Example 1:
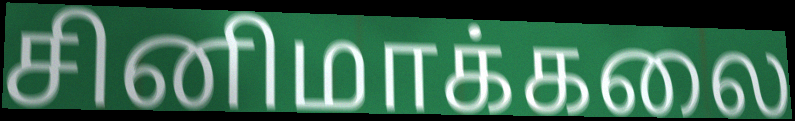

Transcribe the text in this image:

சினிமாக்கலை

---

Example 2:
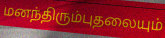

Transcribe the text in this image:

மனந்திரும்புதலையும்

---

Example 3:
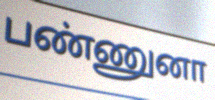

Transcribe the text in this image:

பண்ணுனா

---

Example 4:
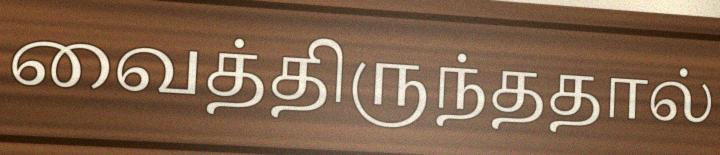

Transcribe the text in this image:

வைத்திருந்ததால்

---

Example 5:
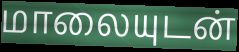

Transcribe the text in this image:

மாலையுடன்